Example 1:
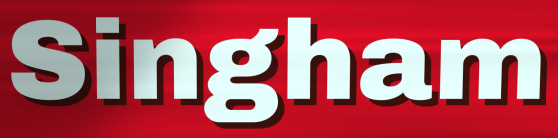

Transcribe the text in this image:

Singham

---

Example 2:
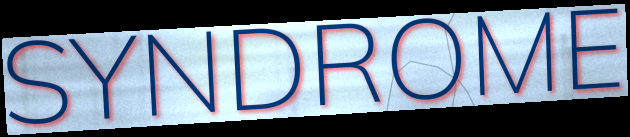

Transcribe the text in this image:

SYNDROME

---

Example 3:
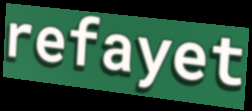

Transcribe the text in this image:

refayet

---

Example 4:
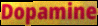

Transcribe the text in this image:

Dopamine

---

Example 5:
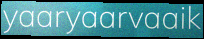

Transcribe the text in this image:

yaaryaarvaaik